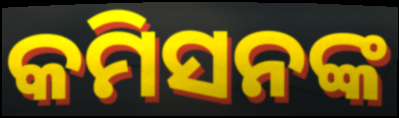
କମିସନଙ୍କ